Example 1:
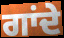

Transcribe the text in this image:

ਗਾਂਦੇ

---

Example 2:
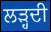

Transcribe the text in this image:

ਲੜ੍ਹਦੀ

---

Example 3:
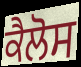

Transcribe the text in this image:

ਕੈਲੋਸ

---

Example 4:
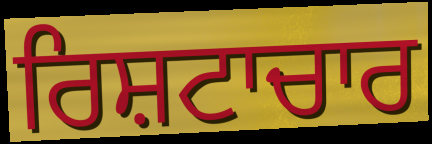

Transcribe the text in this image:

ਰਿਸ਼ਟਾਚਾਰ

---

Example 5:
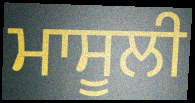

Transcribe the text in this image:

ਮਾਸੂਲੀ